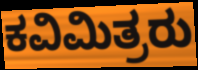
ಕವಿಮಿತ್ರರು